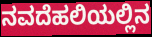
ನವದೆಹಲಿಯಲ್ಲಿನ